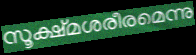
സൂക്ഷ്മശരീരമെന്നു